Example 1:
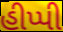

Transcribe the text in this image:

હીપ્પી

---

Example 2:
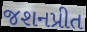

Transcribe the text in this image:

જશનપ્રીત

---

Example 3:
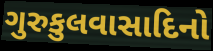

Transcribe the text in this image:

ગુરુકુલવાસાદિનો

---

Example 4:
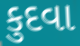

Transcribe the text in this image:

કુદવા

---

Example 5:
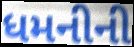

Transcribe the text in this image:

ધમનીની